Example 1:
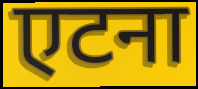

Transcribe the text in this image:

एटना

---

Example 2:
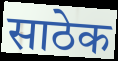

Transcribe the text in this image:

साठेक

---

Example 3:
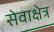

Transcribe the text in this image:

सेवाक्षेत्र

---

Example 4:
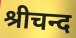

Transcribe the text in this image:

श्रीचन्द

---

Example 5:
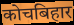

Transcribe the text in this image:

कोचबिहार